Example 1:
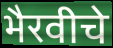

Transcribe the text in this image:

भैरवीचे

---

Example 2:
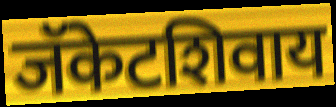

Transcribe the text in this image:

जॅकेटशिवाय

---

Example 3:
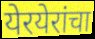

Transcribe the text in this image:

येरयेरांचा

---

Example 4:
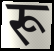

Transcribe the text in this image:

रू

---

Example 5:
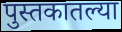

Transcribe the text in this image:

पुस्तकातल्या